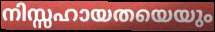
നിസ്സഹായതയെയും